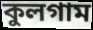
কুলগাম